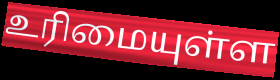
உரிமையுள்ள